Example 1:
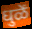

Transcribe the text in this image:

धुळें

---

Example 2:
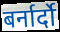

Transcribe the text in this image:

बर्नार्दो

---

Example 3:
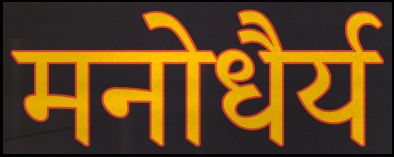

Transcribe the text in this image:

मनोधैर्य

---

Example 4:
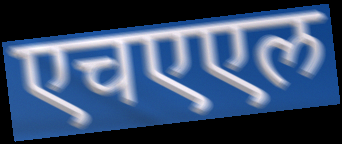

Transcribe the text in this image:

एचएएल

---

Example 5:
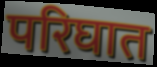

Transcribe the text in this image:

परिघात